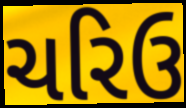
ચરિઉ